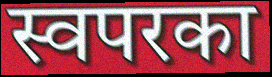
स्वपरका